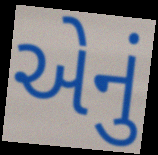
એેનું